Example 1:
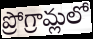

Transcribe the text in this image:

ప్రోగ్రామ్లలో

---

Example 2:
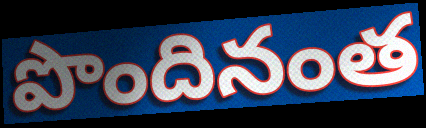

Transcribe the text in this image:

పొందినంత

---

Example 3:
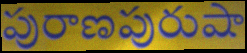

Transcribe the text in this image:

పురాణపురుషా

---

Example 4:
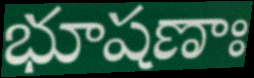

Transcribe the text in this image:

భూషణాః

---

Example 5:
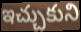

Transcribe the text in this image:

ఇచ్చుకుని